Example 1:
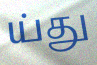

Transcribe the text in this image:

ய்து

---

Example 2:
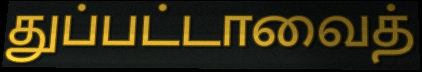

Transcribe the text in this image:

துப்பட்டாவைத்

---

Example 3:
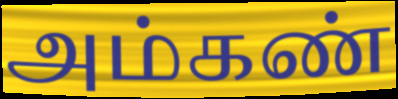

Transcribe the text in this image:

அம்கண்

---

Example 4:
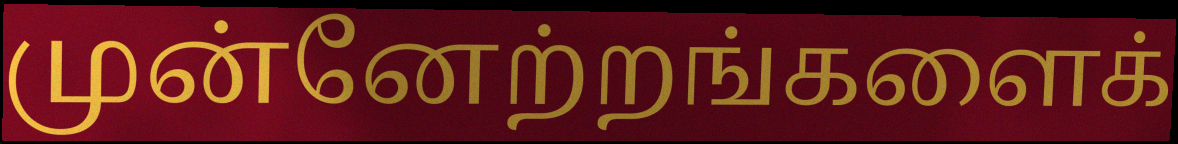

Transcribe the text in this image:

முன்னேற்றங்களைக்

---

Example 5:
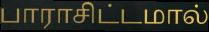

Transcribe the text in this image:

பாராசிட்டமால்